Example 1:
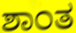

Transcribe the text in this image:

ಶಾಂತ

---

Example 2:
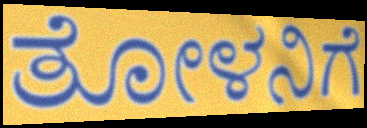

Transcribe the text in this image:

ತೋಳನಿಗೆ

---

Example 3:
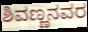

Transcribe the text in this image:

ಶಿವಣ್ಣನವರ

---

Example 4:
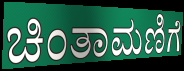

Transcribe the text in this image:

ಚಿಂತಾಮಣಿಗೆ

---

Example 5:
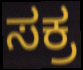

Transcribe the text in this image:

ಸಕ್ರ